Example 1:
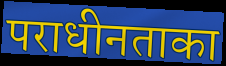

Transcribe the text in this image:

पराधीनताका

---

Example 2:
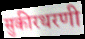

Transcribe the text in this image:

सुकीरथरणी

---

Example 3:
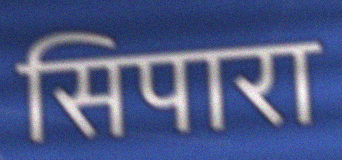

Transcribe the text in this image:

सिपारा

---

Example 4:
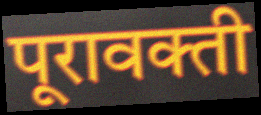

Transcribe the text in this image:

पूरावक्ती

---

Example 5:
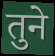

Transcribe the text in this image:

तुने